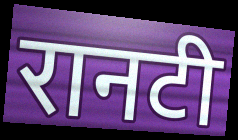
रानटी